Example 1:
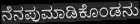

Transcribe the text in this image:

ನೆನಪುಮಾಡಿಕೊಂಡನು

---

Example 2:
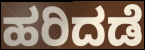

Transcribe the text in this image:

ಹರಿದಡೆ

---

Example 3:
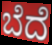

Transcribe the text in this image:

ಬೆದೆ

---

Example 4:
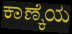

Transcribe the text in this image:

ಕಾಣ್ಕೆಯ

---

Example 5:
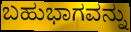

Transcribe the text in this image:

ಬಹುಭಾಗವನ್ನು